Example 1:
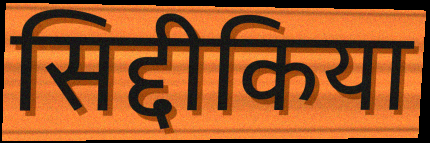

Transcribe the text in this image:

सिद्दीकिया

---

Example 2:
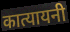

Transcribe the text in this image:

कात्यायनी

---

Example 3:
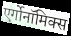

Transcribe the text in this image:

एर्गोनॉमिक्स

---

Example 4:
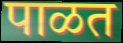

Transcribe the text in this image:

पाळत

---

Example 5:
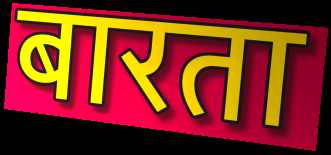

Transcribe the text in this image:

बारता